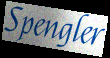
Spengler